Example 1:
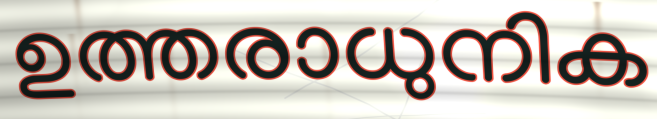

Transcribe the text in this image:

ഉത്തരാധുനിക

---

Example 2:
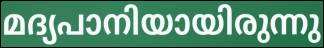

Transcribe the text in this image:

മദ്യപാനിയായിരുന്നു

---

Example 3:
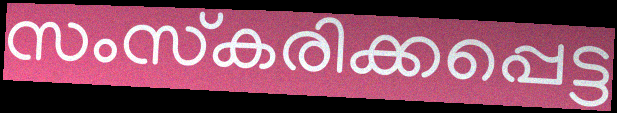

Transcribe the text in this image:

സംസ്‌കരിക്കപ്പെട്ട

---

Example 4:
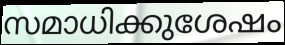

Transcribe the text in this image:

സമാധിക്കുശേഷം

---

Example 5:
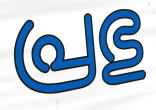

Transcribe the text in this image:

പ്രഭു